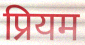
प्रियम